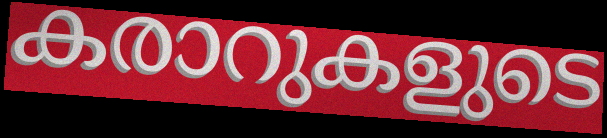
കരാറുകളുടെ